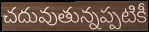
చదువుతున్నప్పటికీ